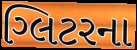
ગ્લિટરના